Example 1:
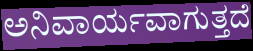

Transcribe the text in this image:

ಅನಿವಾರ್ಯವಾಗುತ್ತದೆ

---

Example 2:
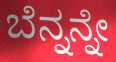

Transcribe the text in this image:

ಬೆನ್ನನ್ನೇ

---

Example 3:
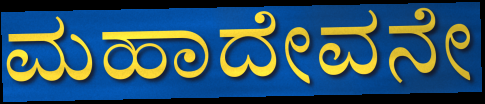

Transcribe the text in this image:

ಮಹಾದೇವನೇ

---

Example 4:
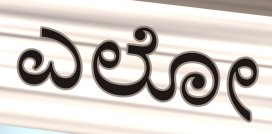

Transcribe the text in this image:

ಎಲೋ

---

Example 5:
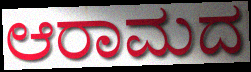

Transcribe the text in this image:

ಆರಾಮದ